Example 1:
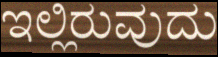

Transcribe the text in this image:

ಇಲ್ಲಿರುವುದು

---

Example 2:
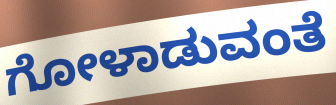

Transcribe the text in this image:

ಗೋಳಾಡುವಂತೆ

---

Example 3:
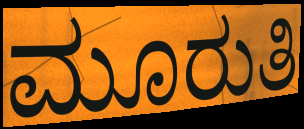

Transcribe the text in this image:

ಮೂರುತಿ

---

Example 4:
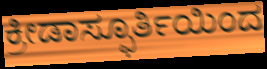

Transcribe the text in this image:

ಕ್ರೀಡಾಸ್ಫೂರ್ತಿಯಿಂದ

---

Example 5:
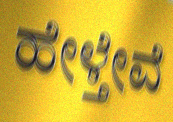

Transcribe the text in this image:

ಹೇಳ್ತೇವೆ